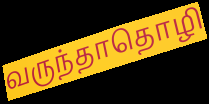
வருந்தாதொழி